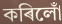
কৰিলোঁ